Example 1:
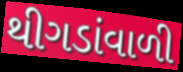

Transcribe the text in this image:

થીગડાંવાળી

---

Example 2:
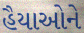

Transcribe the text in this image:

હૈયાઓને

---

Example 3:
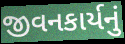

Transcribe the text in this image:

જીવનકાર્યનું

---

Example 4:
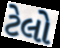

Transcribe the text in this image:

ટેલો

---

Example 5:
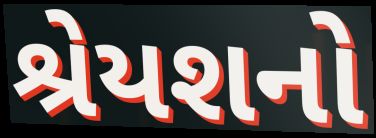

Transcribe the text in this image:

શ્રેયશનો